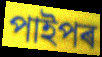
পাইপৰ